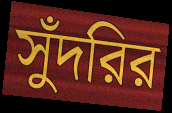
সুঁদরির